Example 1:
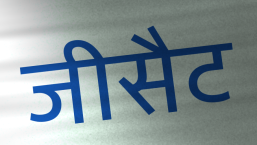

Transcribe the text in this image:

जीसैट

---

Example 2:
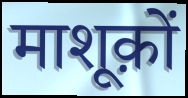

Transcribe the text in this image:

माशूक़ों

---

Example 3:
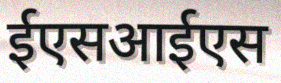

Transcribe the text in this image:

ईएसआईएस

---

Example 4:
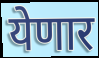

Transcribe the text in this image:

येणार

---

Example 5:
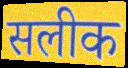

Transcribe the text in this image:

सलीक